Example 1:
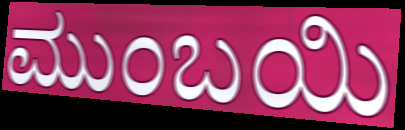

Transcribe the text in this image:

ಮುಂಬಯಿ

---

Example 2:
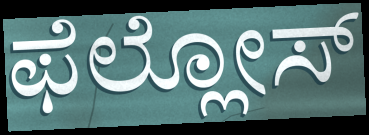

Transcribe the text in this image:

ಫೆಲ್ಲೋಸ್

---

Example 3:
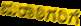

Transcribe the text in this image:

ಮರಾಠಿಗರಿಗೆ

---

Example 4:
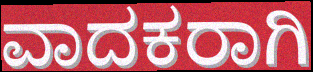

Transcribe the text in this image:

ವಾದಕರಾಗಿ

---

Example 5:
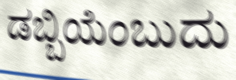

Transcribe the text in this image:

ಡಬ್ಬಿಯೆಂಬುದು